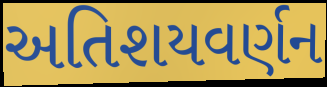
અતિશયવર્ણન